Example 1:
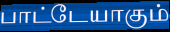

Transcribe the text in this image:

பாட்டேயாகும்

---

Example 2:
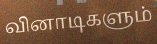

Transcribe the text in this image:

வினாடிகளும்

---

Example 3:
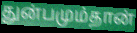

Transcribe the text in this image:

துன்பமும்தான்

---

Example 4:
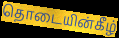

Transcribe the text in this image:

தொடையின்கீழ்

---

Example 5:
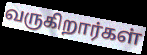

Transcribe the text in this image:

வருகிறார்கள்